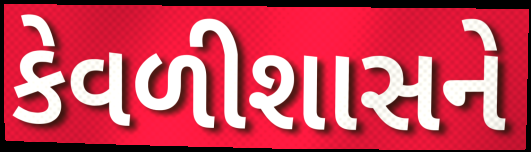
કેવળીશાસને